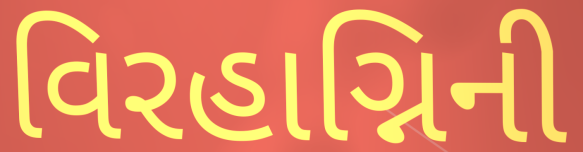
વિરહાગ્નિની